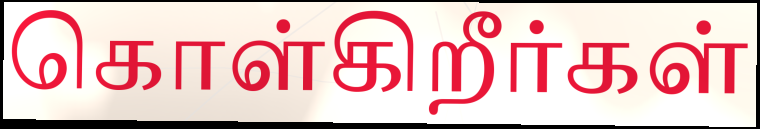
கொள்கிறீர்கள்